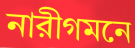
নারীগমনে